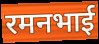
रमनभाई